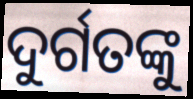
ଦୁର୍ଗତଙ୍କୁ